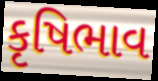
કૃષિભાવ